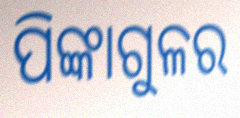
ପିଙ୍କାଗୁଳର